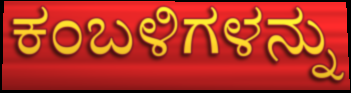
ಕಂಬಳಿಗಳನ್ನು